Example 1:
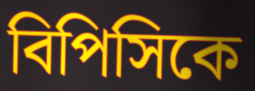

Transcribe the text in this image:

বিপিসিকে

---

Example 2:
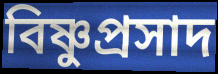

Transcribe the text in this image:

বিষ্ণুপ্রসাদ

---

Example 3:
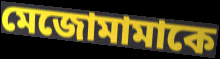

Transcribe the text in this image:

মেজোমামাকে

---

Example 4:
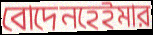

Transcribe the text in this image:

বোদেনহেইমার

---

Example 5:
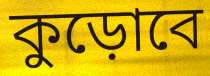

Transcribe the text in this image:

কুড়োবে